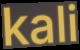
kali